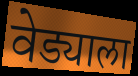
वेड्याला